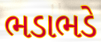
ભડાભડે